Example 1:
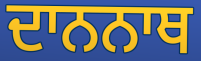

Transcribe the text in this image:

ਦਾਨਨਾਥ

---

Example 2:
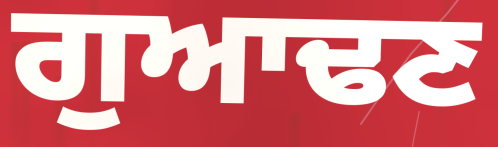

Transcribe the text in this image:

ਗੁਆਢਣ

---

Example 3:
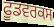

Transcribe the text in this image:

ਫੂਡਵਰਕਸ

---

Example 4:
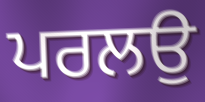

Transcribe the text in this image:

ਪਰਲਉ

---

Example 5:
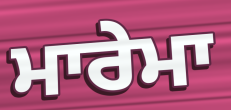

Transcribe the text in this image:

ਮਾਰੇਮਾ